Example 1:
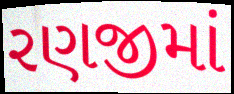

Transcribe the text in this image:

રણજીમાં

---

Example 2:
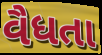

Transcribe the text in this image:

વૈધતા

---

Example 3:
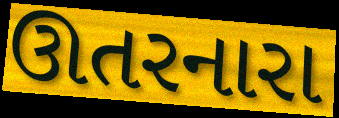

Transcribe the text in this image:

ઊતરનારા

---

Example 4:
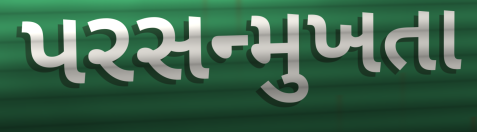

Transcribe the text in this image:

પરસન્મુખતા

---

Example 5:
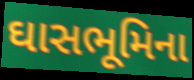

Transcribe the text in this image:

ઘાસભૂમિના